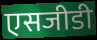
एसजीडी